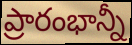
ప్రారంభాన్నీ